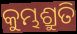
କୁମ୍ଭଶ୍ରୁତି